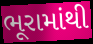
ભૂરામાંથી